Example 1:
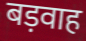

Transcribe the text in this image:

बड़वाह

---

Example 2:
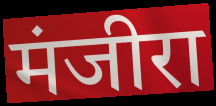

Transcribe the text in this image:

मंजीरा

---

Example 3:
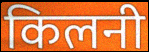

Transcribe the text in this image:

किलनी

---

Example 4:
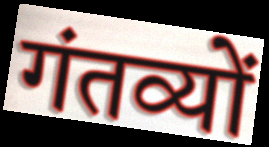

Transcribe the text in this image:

गंतव्यों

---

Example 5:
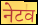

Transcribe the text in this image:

नेटव